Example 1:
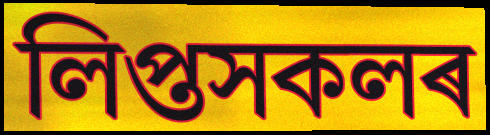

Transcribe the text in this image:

লিপ্তসকলৰ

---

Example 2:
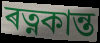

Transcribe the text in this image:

ৰত্নকান্ত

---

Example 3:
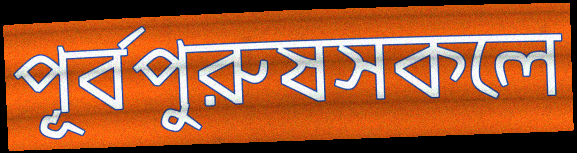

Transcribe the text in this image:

পূৰ্বপুৰুষসকলে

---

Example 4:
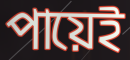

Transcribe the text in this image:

পায়েই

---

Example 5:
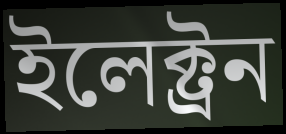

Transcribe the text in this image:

ইলেক্ট্ৰন